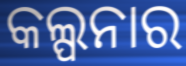
କଲ୍ପନାର